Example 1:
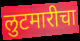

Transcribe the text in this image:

लुटमारीचा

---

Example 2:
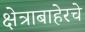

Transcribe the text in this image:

क्षेत्राबाहेरचे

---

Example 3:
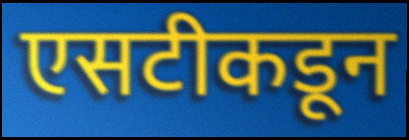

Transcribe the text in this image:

एसटीकडून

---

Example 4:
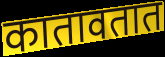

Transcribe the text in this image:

कातावतात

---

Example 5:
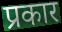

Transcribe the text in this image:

प्रकार